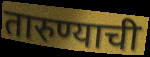
तारुण्याची